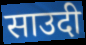
साउदी